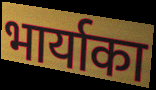
भार्याका